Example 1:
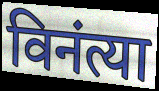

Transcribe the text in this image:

विनंत्या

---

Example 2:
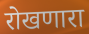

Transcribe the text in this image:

रोखणारा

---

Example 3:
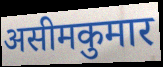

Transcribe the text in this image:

असीमकुमार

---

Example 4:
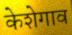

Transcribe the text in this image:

केशेगाव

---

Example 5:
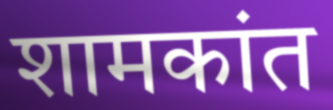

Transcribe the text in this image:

शामकांत